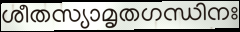
ശീതസ്യാമൃതഗന്ധിനഃ